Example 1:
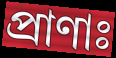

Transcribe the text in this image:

প্রাণাঃ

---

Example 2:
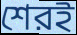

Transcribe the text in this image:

শেরই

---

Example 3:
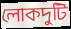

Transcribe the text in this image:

লোকদুটি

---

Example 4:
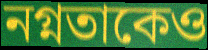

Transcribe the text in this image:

নগ্নতাকেও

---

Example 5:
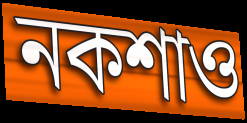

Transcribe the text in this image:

নকশাও